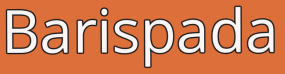
Barispada